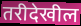
तरीदेखील